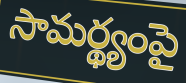
సామర్థ్యంపై